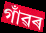
গাঁৱৰ